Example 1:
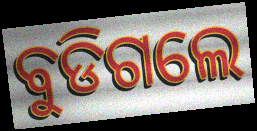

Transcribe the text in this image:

ବୁଡିଗଲେ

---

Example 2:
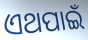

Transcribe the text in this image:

ଏଥପାଇଁ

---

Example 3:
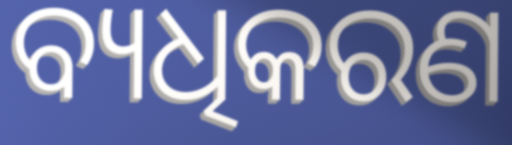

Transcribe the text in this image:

ବ୍ୟଧିକରଣ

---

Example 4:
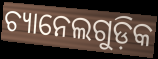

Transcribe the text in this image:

ଚ୍ୟାନେଲଗୁଡ଼ିକ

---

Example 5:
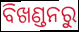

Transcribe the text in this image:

ବିଖଣ୍ଡନରୁ